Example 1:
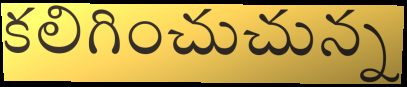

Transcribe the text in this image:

కలిగించుచున్న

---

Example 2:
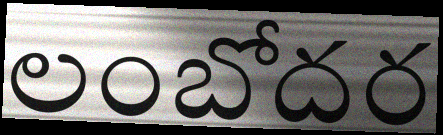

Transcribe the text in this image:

లంబోదర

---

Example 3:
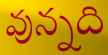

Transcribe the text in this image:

వున్నది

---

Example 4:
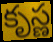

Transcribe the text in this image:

కృస్ణ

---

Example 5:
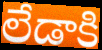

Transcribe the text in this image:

లేడాకి